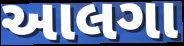
આલગા